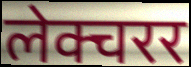
लेक्चरर